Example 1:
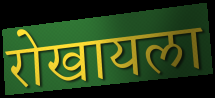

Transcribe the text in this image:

रोखायला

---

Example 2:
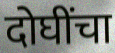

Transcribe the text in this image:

दोघींचा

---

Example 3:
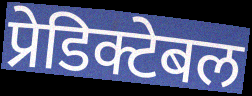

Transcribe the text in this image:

प्रेडिक्टेबल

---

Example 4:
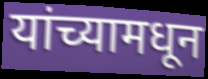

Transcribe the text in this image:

यांच्यामधून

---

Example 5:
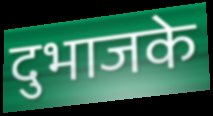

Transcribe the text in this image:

दुभाजके